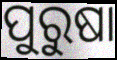
ପୁରୁଷା